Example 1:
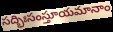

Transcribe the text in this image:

సద్భిఃసంస్తూయమానాం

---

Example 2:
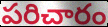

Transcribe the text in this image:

పరిచారం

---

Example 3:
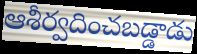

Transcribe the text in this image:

ఆశీర్వదించబడ్డాడు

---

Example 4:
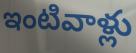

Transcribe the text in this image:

ఇంటివాళ్లు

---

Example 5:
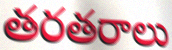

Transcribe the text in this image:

తరతరాలు